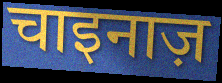
चाइनाज़